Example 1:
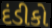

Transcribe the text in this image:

દંડીકો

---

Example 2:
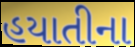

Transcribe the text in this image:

હયાતીના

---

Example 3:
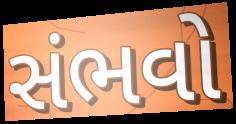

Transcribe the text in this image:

સંભવો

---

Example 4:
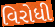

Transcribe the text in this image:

વિરોધી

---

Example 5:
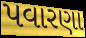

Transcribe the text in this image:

પવારણા